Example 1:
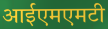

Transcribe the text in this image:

आईएमएमटी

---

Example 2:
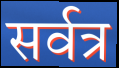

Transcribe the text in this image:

सर्वत्र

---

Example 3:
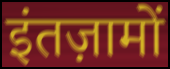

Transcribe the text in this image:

इंतज़ामों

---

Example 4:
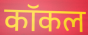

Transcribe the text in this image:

कॉकल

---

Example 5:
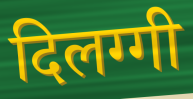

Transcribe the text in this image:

दिलग्गी